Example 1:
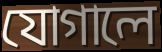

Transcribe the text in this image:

যোগালে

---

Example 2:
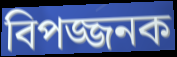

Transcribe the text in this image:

বিপজ্জনক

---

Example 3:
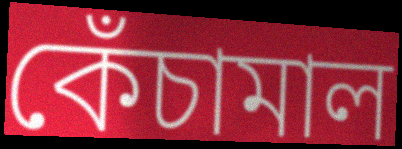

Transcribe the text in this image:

কেঁচামাল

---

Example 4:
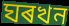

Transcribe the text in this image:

ঘৰখন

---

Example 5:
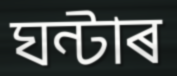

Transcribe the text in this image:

ঘন্টাৰ